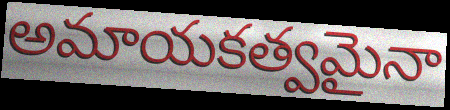
అమాయకత్వమైనా